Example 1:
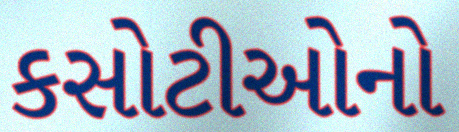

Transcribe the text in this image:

કસોટીઓનો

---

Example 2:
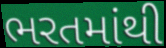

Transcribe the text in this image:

ભરતમાંથી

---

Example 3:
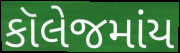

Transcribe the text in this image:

કૉલેજમાંય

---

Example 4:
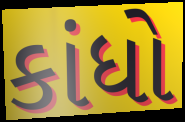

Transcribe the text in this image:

કાંધો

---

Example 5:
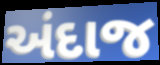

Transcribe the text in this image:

અંદાજ